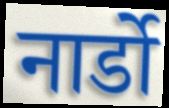
नार्डो